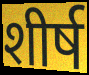
शीर्ष